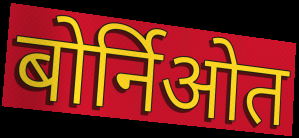
बोर्निओत